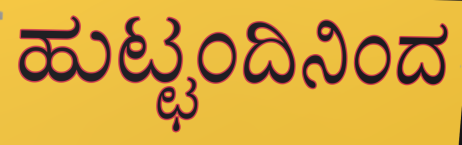
ಹುಟ್ಟಂದಿನಿಂದ